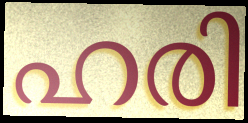
ഹരി